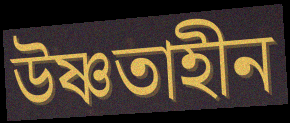
উষ্ণতাহীন